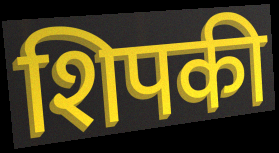
शिपकी